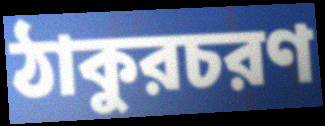
ঠাকুরচরণ